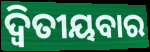
ଦ୍ୱିତୀୟବାର